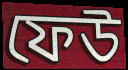
ফেউ